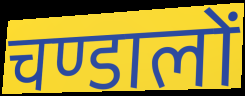
चण्डालों